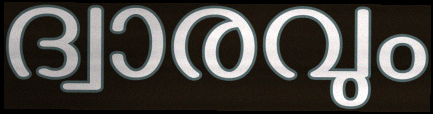
ദ്വാരവും